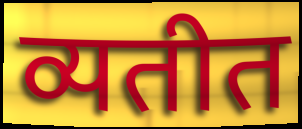
व्यतीत